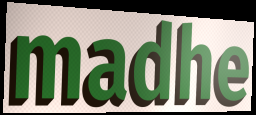
madhe